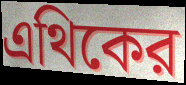
এথিকের